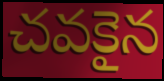
చవకైన